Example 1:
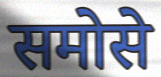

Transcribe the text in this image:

समोसे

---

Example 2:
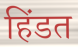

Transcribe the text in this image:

हिंडत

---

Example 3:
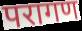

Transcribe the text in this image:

परागण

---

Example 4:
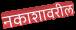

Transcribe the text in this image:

नकाशावरील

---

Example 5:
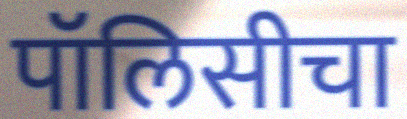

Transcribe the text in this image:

पॉलिसीचा